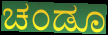
ಚಂಡೂ